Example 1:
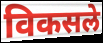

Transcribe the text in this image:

विकसले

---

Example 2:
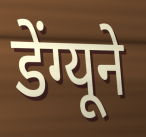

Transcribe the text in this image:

डेंग्यूने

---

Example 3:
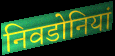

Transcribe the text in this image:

निवडोनियां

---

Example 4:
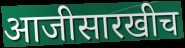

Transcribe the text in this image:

आजीसारखीच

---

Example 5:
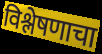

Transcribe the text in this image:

विश्लेषणाचा